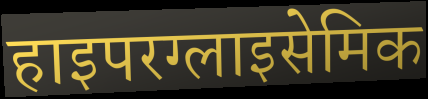
हाइपरग्लाइसेमिक